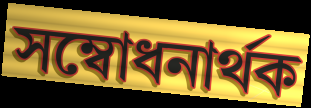
সম্বোধনাৰ্থক